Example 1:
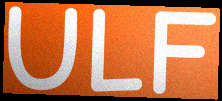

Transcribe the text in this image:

ULF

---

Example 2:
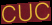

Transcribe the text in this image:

CUC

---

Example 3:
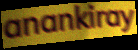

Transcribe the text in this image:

anankiray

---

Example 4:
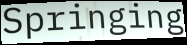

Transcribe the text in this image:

Springing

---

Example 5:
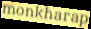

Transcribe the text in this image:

monkharap